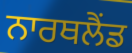
ਨਾਰਥਲੈਂਡ